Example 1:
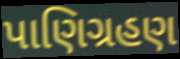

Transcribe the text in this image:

પાણિગ્રહણ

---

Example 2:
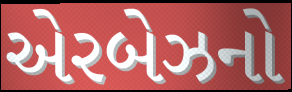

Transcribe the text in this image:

એરબેઝનો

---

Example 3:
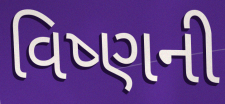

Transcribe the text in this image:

વિષ્ણની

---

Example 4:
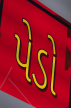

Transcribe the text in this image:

પેડો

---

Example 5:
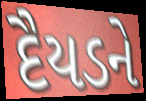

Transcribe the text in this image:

દૈયડને